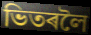
ভিতৰলৈ